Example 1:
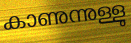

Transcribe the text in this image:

കാണുന്നുള്ളു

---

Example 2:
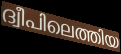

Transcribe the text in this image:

ദ്വീപിലെത്തിയ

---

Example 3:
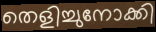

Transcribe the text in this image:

തെളിച്ചുനോക്കി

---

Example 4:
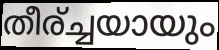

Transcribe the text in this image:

തീര്ച്ചയായും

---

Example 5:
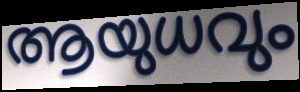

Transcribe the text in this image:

ആയുധവും